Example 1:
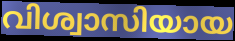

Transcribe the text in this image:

വിശ്വാസിയായ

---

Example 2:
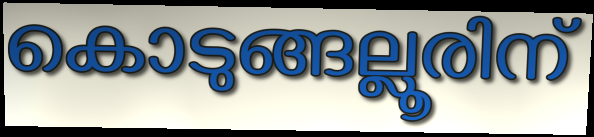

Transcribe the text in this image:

കൊടുങ്ങല്ലൂരിന്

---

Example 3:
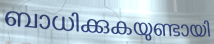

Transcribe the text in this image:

ബാധിക്കുകയുണ്ടായി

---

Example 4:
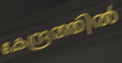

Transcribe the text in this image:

കേന്ദ്രത്തിൽ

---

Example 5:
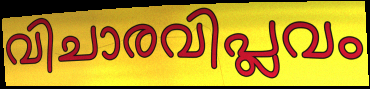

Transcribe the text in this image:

വിചാരവിപ്ലവം